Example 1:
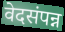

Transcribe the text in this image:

वेदसंपन्न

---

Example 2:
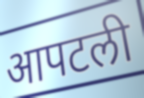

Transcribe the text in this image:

आपटली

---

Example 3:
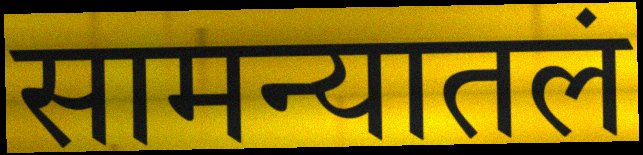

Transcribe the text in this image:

सामन्यातलं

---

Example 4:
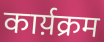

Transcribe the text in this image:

कार्य़क्रम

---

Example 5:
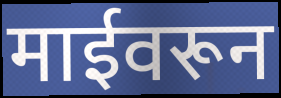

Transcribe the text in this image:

माईवरून